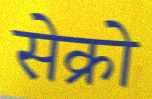
सेक्रो